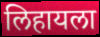
लिहायला